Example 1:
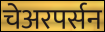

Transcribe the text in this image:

चेअरपर्सन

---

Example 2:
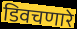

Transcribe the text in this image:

डिवचणारे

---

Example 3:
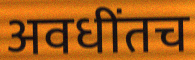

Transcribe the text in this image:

अवधींतच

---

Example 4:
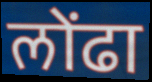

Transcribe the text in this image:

लोंढा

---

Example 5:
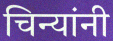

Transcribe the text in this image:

चिन्यांनी